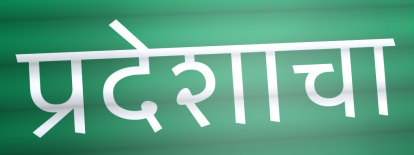
प्रदेशाचा